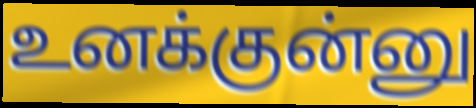
உனக்குன்னு